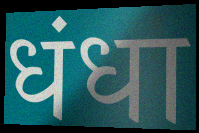
धंधा